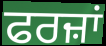
ਫਰਜ਼ਾਂ